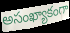
అసంఖ్యాకంగా